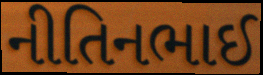
નીતિનભાઈ